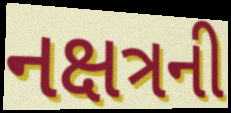
નક્ષત્રની